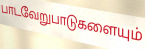
பாடவேறுபாடுகளையும்